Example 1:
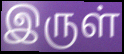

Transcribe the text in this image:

இருள்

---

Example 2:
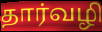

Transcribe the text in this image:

தார்வழி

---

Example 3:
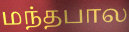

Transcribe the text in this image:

மந்தபால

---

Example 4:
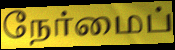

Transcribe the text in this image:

நேர்மைப்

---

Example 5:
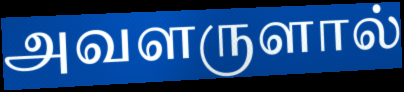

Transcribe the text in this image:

அவளருளால்